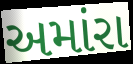
અમાંરા